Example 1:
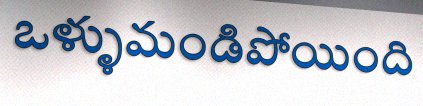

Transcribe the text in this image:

ఒళ్ళుమండిపోయింది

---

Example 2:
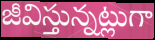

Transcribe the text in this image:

జీవిస్తున్నట్లుగా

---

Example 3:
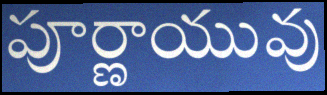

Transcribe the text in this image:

పూర్ణాయువు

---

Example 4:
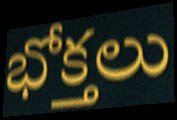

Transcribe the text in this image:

భోక్తలు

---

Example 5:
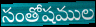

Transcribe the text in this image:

సంతోషముల